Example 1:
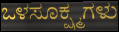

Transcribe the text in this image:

ಒಳಸೂಕ್ಷ್ಮಗಳು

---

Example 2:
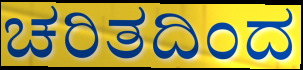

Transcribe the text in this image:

ಚರಿತದಿಂದ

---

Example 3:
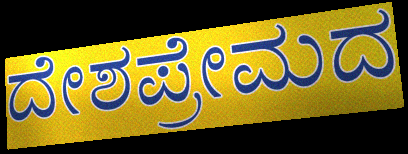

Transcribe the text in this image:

ದೇಶಪ್ರೇಮದ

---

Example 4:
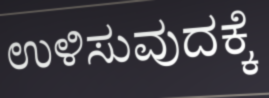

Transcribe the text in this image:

ಉಳಿಸುವುದಕ್ಕೆ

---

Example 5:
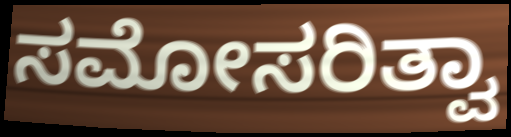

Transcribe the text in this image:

ಸಮೋಸರಿತ್ವಾ